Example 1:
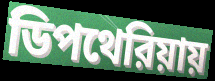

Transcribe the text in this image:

ডিপথেরিয়ায়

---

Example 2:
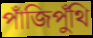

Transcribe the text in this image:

পাঁজিপুঁথি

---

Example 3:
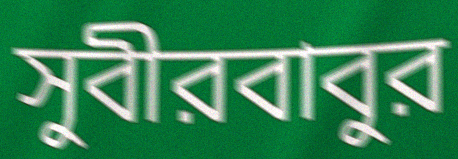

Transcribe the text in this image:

সুবীরবাবুর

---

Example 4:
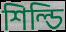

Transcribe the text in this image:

শিল্ডি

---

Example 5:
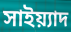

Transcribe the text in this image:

সাইয়্যাদ